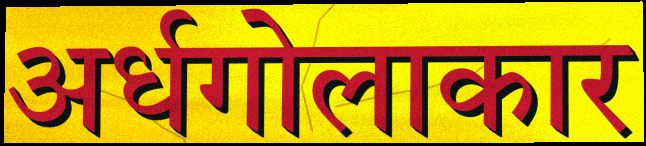
अर्धगोलाकार